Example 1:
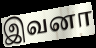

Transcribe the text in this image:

இவனா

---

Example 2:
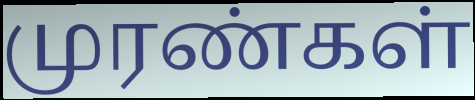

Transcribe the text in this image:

முரண்கள்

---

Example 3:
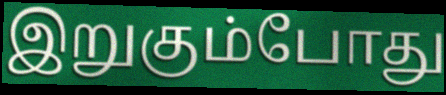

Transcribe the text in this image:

இறுகும்போது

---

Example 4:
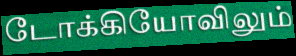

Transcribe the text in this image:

டோக்கியோவிலும்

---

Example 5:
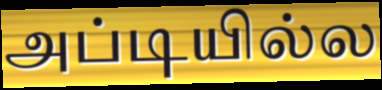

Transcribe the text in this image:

அப்டியில்ல